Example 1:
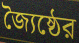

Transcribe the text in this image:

জ্যৈষ্ঠের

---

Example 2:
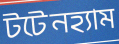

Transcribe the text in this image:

টটেনহ্যাম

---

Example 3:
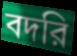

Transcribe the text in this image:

বদরি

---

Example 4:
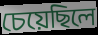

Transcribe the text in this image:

চেয়েছিলে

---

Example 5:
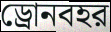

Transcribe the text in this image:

ড্রোনবহর